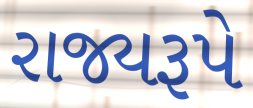
રાજ્યરૂપે